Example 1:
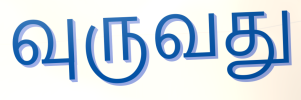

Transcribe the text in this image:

வுருவது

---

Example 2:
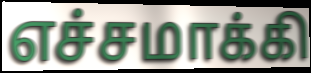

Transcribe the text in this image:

எச்சமாக்கி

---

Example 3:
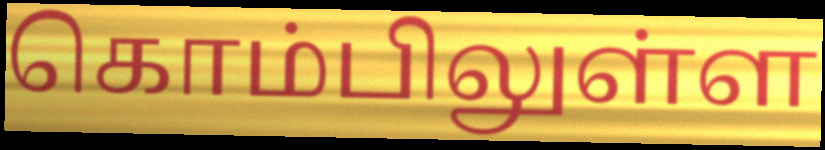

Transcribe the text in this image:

கொம்பிலுள்ள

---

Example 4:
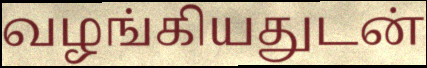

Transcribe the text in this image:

வழங்கியதுடன்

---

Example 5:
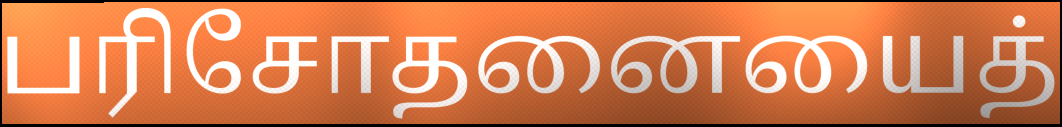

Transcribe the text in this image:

பரிசோதனையைத்